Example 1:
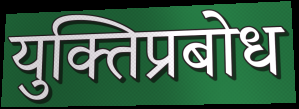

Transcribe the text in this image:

युक्तिप्रबोध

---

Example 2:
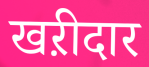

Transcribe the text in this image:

खऱीदार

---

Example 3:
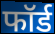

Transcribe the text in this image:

फॉर्ड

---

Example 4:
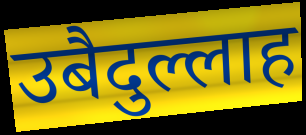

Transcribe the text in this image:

उबैदुल्लाह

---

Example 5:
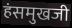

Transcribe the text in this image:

हंसमुखजी